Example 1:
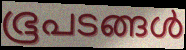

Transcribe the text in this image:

ഭൂപടങ്ങൾ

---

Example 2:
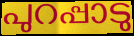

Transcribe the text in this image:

പുറപ്പാടു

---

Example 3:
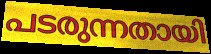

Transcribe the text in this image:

പടരുന്നതായി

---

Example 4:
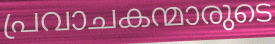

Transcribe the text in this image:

പ്രവാചകന്മാരുടെ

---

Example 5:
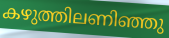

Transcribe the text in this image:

കഴുത്തിലണിഞ്ഞു